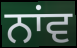
ਨਾਂਵ